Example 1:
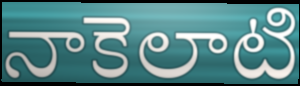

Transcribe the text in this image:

నాకెలాటి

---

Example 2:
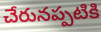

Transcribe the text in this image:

చేరునప్పటికి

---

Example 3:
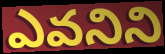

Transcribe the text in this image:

ఎవనిని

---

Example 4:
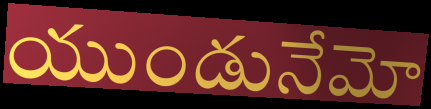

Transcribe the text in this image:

యుండునేమో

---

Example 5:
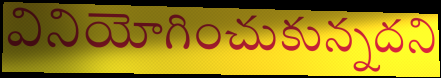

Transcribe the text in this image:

వినియోగించుకున్నదని